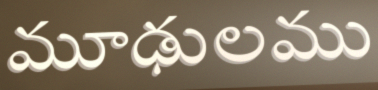
మూఢులము